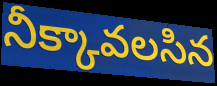
నీక్కావలసిన